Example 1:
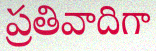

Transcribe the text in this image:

ప్రతివాదిగా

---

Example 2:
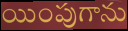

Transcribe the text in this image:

యింపుగాను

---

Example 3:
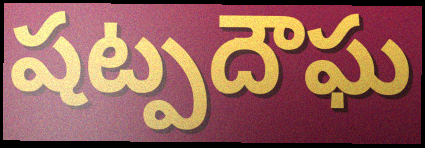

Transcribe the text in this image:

షట్పదౌఘ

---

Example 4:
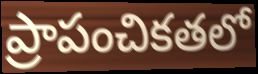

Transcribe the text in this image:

ప్రాపంచికతలో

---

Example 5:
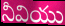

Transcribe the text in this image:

నీవియు